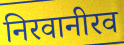
निरवानीरव